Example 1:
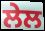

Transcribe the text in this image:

ਲੇਲ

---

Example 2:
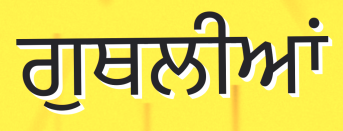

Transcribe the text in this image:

ਗੁਥਲੀਆਂ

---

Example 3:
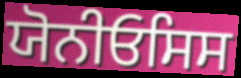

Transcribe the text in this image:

ਯੋਨੀਓਸਿਸ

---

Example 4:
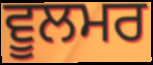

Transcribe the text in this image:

ਵੂਲਮਰ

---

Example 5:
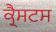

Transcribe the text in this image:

ਕ੍ਰੈਸਟਸ